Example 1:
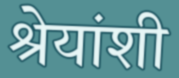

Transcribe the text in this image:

श्रेयांशी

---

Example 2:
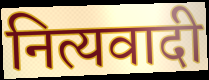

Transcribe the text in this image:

नित्यवादी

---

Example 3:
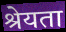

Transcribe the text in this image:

श्रेयता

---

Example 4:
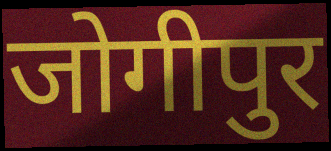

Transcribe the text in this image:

जोगीपुर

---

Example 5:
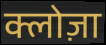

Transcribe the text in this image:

क्लोज़ा